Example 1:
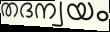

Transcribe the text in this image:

തദന്വയം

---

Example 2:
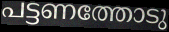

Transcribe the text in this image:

പട്ടണത്തോടു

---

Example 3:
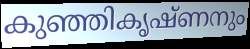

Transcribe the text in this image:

കുഞ്ഞികൃഷ്ണനും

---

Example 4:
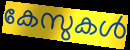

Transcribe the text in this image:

കേസുകൾ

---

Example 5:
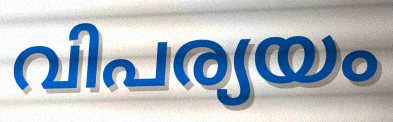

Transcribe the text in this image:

വിപര്യയം